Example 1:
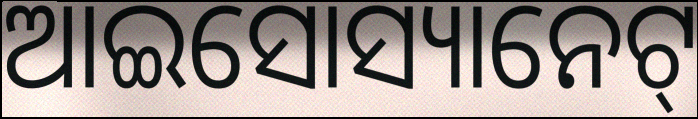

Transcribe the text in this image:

ଆଇସୋସ୍ୟାନେଟ୍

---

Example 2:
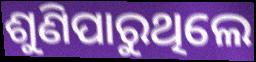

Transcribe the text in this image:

ଶୁଣିପାରୁଥିଲେ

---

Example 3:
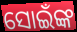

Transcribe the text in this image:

ସୋଇଁଙ୍କ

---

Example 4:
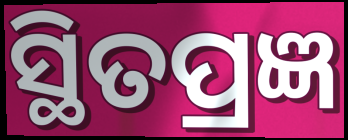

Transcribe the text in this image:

ସ୍ଥିତପ୍ରଜ୍ଞ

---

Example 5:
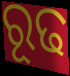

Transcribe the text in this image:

ରୂଢ